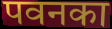
पवनका